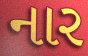
નાર